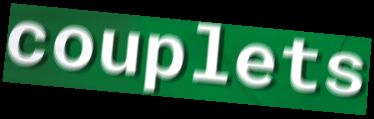
couplets